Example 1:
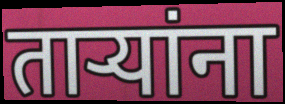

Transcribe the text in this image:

ताऱ्यांना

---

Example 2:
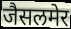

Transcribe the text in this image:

जैसलमेर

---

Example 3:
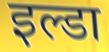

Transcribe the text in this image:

इल्डा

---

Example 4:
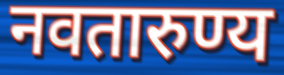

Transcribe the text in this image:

नवतारुण्य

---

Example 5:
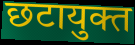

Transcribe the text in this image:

छटायुक्त